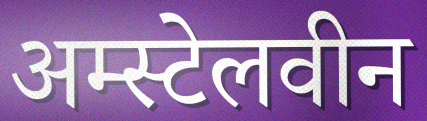
अम्स्टेलवीन